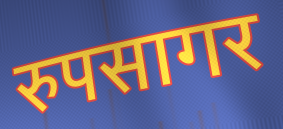
रुपसागर